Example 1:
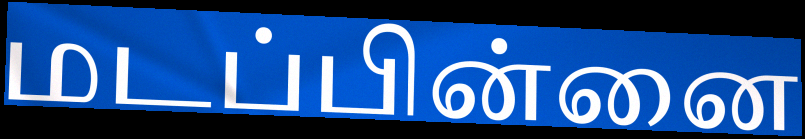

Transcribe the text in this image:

மடப்பின்னை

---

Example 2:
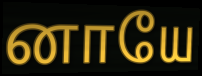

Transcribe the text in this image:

னாயே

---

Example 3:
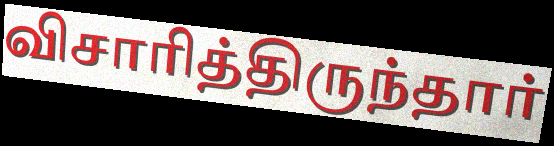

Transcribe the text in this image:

விசாரித்திருந்தார்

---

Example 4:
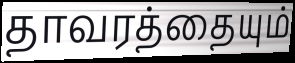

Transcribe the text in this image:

தாவரத்தையும்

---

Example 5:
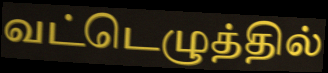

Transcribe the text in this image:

வட்டெழுத்தில்